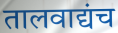
तालवाद्यंच